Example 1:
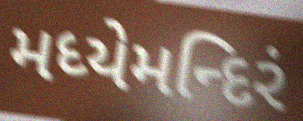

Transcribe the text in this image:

મધ્યેમન્દિરં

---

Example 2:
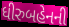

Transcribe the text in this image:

ધીરુબહેનની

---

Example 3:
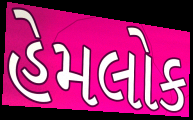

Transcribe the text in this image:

હેમલોક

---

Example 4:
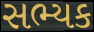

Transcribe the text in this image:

સભ્યક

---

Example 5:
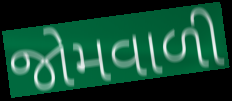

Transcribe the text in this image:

જોમવાળી